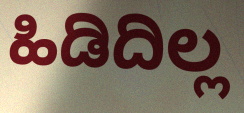
ಹಿಡಿದಿಲ್ಲ